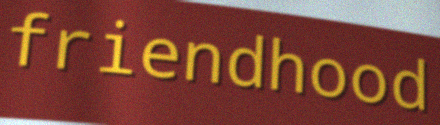
friendhood